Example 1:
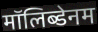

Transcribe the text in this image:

मॉलिब्डेनम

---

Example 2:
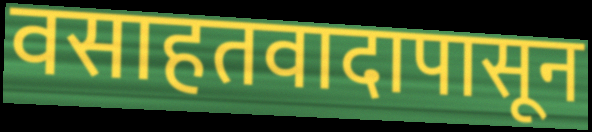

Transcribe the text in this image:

वसाहतवादापासून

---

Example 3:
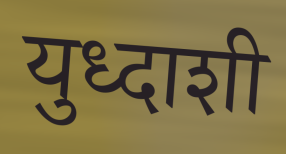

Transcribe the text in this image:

युध्दाशी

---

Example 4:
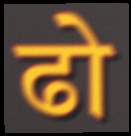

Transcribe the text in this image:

ढो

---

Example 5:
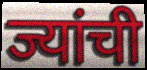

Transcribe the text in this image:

ज्यांची